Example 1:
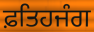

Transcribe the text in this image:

ਫ਼ਤਿਹਜੰਗ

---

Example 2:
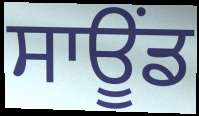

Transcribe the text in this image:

ਸਾਊਂਡ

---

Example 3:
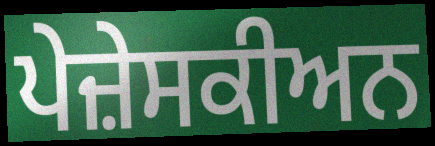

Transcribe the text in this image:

ਪੇਜ਼ੇਸਕੀਅਨ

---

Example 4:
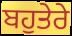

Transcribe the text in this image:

ਬਹੁਤੇਰੇ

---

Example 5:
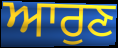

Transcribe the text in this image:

ਆਰੁਣ